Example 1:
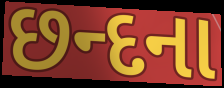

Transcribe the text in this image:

છન્દના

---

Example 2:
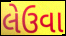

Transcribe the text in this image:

લેઉવા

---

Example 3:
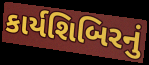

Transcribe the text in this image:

કાર્યશિબિરનું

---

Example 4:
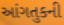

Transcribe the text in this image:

આંગતુકની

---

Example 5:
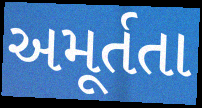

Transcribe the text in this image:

અમૂર્તતા